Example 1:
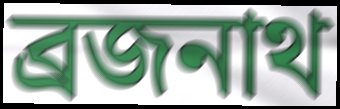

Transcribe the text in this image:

ব্রজনাথ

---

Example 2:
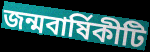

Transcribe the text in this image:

জন্মবার্ষিকীটি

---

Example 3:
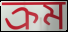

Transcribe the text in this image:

ক্রম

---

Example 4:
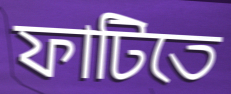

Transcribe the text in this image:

ফাটিতে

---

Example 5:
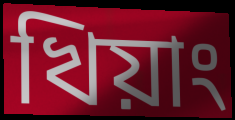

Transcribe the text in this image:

খিয়াং